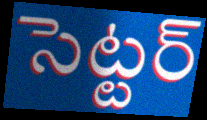
సెట్టర్